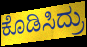
ಕೊಡಿಸಿದ್ರು